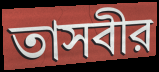
তাসবীর